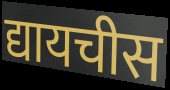
द्यायचीस